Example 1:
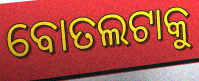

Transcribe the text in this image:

ବୋତଲଟାକୁ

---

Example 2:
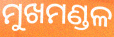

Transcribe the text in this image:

ମୁଖମଣ୍ଡଳ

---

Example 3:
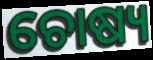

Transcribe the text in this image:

ଚୋଷ୍ୟ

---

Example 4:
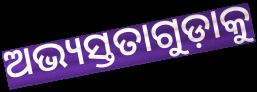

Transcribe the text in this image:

ଅଭ୍ୟସ୍ତତାଗୁଡ଼ାକୁ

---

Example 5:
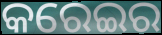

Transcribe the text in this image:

କରେଇର